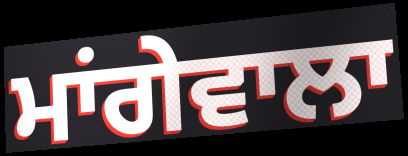
ਮਾਂਗੇਵਾਲਾ